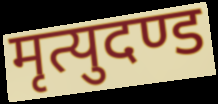
मृत्युदण्ड